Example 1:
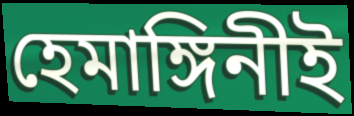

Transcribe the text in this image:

হেমাঙ্গিনীই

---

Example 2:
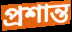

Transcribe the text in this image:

প্রশান্ত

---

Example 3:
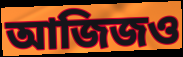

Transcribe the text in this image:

আজিজও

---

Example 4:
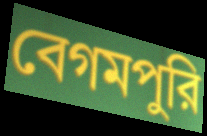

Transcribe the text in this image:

বেগমপুরি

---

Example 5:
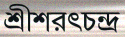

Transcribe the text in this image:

শ্রীশরৎচন্দ্র